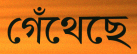
গেঁথেছে